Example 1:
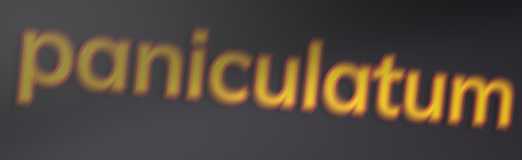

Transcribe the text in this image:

paniculatum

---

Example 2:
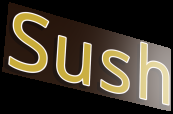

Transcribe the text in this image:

Sush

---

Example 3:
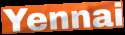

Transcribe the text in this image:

Yennai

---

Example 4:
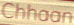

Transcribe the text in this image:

Chhaan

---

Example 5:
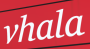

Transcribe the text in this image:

vhala